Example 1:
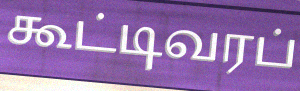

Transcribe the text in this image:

கூட்டிவரப்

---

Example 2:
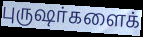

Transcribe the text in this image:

புருஷர்களைக்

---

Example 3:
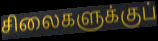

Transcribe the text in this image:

சிலைகளுக்குப்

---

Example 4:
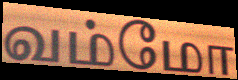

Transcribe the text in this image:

வம்மோ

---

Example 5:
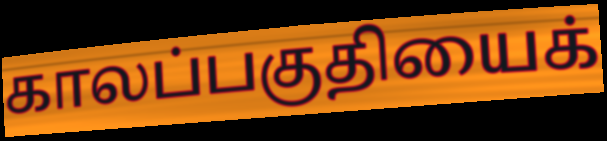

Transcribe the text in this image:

காலப்பகுதியைக்